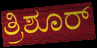
ತ್ರಿಶೂರ್